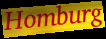
Homburg